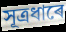
সূত্ৰধাৰে